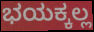
ಭಯಕ್ಕಲ್ಲ